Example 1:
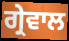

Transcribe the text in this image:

ਗ੍ਰੇਵਾਲ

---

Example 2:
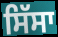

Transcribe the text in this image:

ਸਿੱਸਾ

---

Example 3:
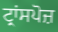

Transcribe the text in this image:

ਟ੍ਰਾਂਸਪੋਜ਼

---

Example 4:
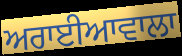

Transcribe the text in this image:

ਅਰਾਈਆਵਾਲਾ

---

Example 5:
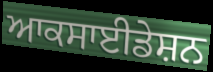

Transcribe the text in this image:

ਆਕਸਾਈਡੇਸ਼ਨ